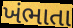
ખંભાતા